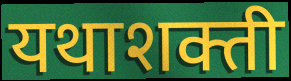
यथाशक्‍ती